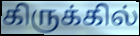
கிருக்கில்